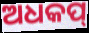
ଅଧକପ୍